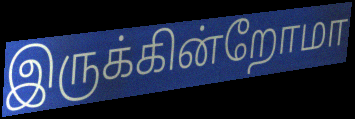
இருக்கின்றோமா